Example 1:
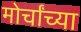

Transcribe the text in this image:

मोर्चांच्या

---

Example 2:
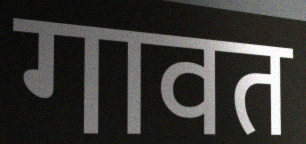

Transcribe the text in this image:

गावत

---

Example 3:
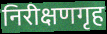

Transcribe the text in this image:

निरीक्षणगृह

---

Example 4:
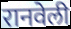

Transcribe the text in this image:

रानवेली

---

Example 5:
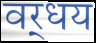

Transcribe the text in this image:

वर्धय